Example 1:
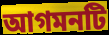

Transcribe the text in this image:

আগমনটি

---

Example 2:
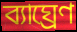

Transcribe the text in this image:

ব্যাঘ্রেণ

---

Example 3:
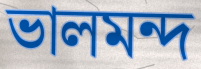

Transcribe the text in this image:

ভালমন্দ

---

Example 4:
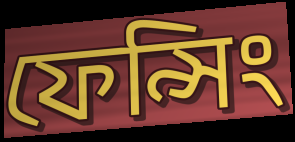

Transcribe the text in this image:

ফেন্সিং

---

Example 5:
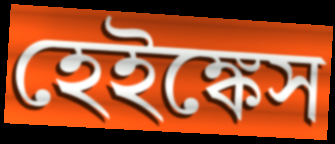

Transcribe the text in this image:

হেইঙ্কেস